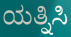
ಯತ್ನಿಸಿ